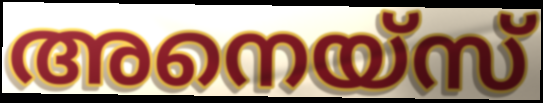
അനെയ്സ്